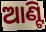
ଆଣ୍ଟି